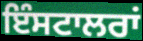
ਇੰਸਟਾਲਰਾਂ